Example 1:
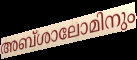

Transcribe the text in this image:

അബ്ശാലോമിനും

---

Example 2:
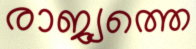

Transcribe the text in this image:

രാജ്യത്തെ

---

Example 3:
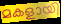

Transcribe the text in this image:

മകളായി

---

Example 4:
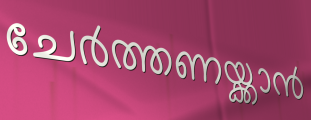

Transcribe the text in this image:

ചേർത്തണയ്ക്കാൻ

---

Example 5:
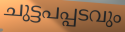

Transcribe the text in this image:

ചുട്ടപപ്പടവും